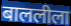
बाललीला